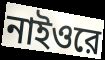
নাইওরে